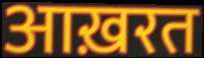
आख़रत